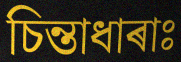
চিন্তাধাৰাঃ